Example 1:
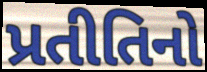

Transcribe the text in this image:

પ્રતીતિનો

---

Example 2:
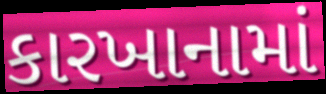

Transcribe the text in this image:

કારખાનામાં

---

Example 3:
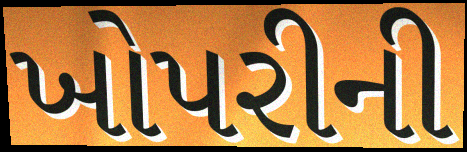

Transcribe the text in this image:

ખોપરીની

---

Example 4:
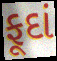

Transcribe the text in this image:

ફૂદાં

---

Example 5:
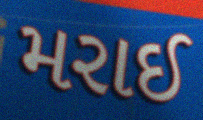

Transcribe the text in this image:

મરાઈ